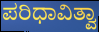
ಪರಿಧಾವಿತ್ವಾ